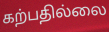
கற்பதில்லை